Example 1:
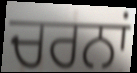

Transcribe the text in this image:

ਚਰਨਾਂ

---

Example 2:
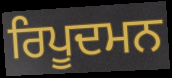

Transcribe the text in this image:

ਰਿਪੂਦਮਨ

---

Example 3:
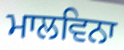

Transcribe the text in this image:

ਮਾਲਵਿਨਾ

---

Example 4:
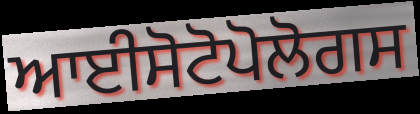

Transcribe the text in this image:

ਆਈਸੋਟੋਪੋਲੋਗਸ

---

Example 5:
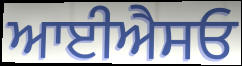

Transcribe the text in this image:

ਆਈਐਸਓ